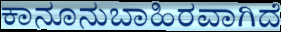
ಕಾನೂನುಬಾಹಿರವಾಗಿದೆ